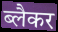
ब्लैकर